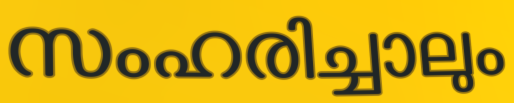
സംഹരിച്ചാലും